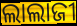
ଲାଲାଜୀ